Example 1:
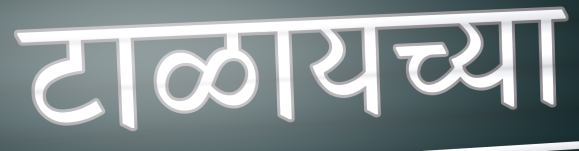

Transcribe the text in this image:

टाळायच्या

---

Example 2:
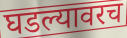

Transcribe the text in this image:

घडल्यावरच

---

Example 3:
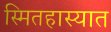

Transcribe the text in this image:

स्मितहास्यात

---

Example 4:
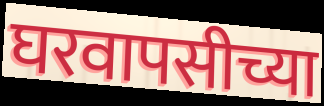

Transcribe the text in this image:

घरवापसीच्या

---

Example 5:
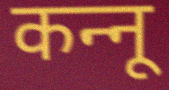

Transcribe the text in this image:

कन्नू